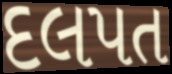
દલપત